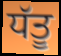
ਧੱਤੂ